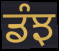
ਡੰਝ